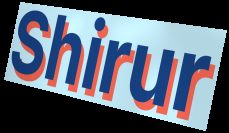
Shirur